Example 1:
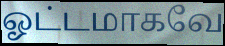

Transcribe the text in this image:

ஓட்டமாகவே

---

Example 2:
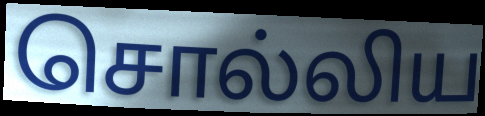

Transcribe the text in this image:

சொல்லிய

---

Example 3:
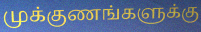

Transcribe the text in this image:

முக்குணங்களுக்கு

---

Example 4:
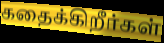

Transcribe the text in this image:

கதைக்கிறீர்கள்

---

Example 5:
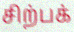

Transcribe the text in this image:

சிற்பக்